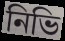
নিভি